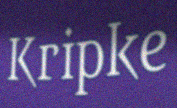
Kripke